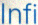
Infi